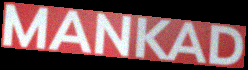
MANKAD